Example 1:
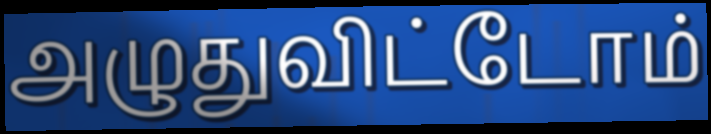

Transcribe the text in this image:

அழுதுவிட்டோம்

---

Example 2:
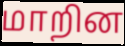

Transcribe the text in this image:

மாறின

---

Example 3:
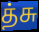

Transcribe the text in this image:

த்சு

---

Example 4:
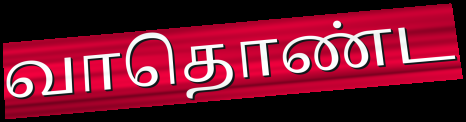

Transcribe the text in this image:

வாதொண்ட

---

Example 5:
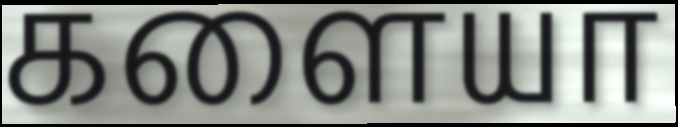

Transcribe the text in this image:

களையா